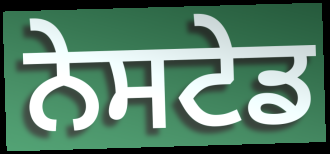
ਨੇਸਟੇਡ